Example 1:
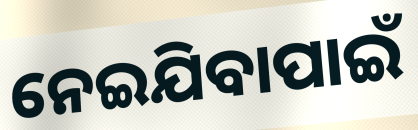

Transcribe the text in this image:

ନେଇଯିବାପାଇଁ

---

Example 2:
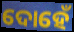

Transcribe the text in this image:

ଦୋହେଁ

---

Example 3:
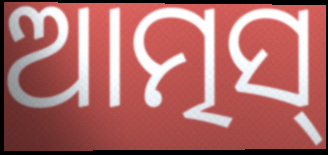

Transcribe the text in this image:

ଆତ୍ମସ୍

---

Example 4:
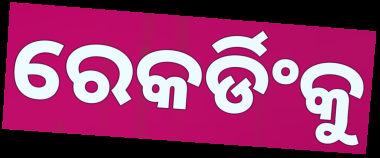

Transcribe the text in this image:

ରେକର୍ଡିଂକୁ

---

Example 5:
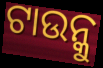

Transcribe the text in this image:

ଟାଉନ୍କୁ